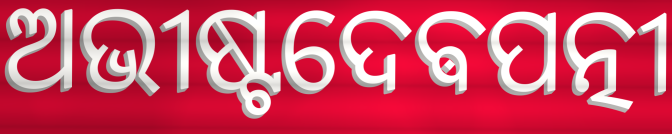
ଅଭୀଷ୍ଟଦେଵପତ୍ନୀ